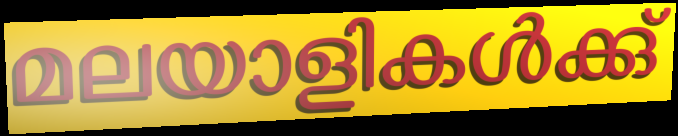
മലയാളികൾക്കു്